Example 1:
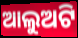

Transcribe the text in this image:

ଆଲୁଅଟି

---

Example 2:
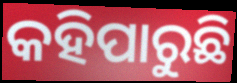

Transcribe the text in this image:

କହିପାରୁଛି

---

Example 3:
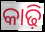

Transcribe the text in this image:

କାଢ଼ି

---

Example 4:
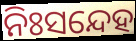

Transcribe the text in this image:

ନିଃସନ୍ଦେହ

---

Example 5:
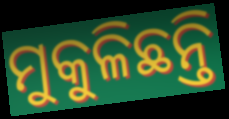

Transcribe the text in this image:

ମୁକୁଳିଛନ୍ତି